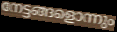
നേട്ടങ്ങളൊന്നും